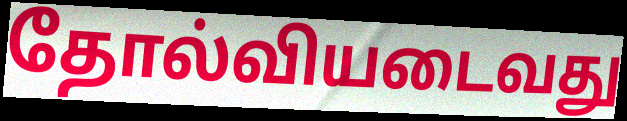
தோல்வியடைவது